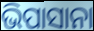
ଭିପାସାନା